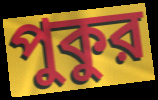
পুকুর